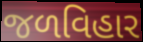
જળવિહાર